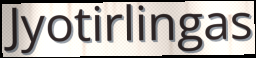
Jyotirlingas